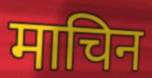
माचिन